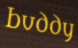
buddy